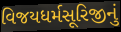
વિજયધર્મસૂરિજીનું